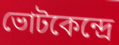
ভোটকেন্দ্রে